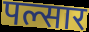
पल्सार